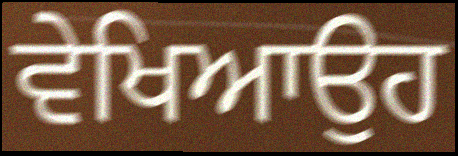
ਵੇਖਿਆਉਹ